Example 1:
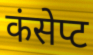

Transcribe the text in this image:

कंसेप्ट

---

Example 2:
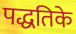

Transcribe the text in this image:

पद्धतिके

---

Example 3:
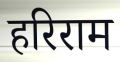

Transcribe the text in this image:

हरिराम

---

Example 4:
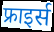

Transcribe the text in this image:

फ्राइर्स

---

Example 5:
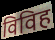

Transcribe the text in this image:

विविह